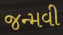
જન્મવી